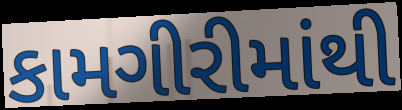
કામગીરીમાંથી